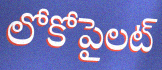
లోకోపైలట్